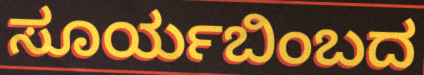
ಸೂರ್ಯಬಿಂಬದ